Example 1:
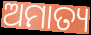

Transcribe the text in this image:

ଅମାତ୍ୟ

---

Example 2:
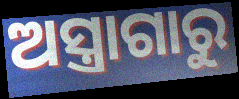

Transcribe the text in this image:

ଅସ୍ତ୍ରାଗାରୁ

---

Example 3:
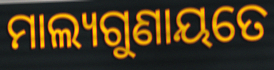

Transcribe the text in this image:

ମାଲ୍ୟଗୁଣାୟତେ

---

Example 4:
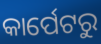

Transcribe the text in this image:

କାର୍ପେଟରୁ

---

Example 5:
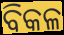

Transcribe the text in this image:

ବିକଳ